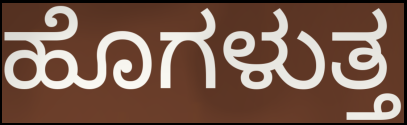
ಹೊಗಳುತ್ತ